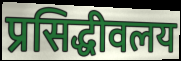
प्रसिद्धीवलय